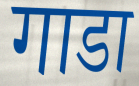
गाडा